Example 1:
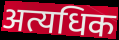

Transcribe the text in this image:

अत्यधिक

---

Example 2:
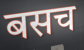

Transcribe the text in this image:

बसच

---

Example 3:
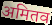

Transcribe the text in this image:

अमितव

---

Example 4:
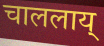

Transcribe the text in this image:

चाललाय्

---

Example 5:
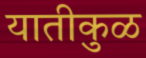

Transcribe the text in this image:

यातीकुळ